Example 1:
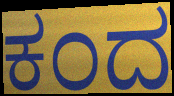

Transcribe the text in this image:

ಕಂದ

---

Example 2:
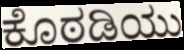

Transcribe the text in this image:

ಕೊಠಡಿಯು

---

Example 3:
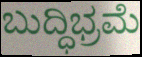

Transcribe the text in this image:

ಬುದ್ಧಿಭ್ರಮೆ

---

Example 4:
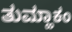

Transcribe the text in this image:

ತುಮ್ಹಾಕಂ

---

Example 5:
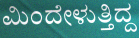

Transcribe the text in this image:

ಮಿಂದೇಳುತ್ತಿದ್ದ